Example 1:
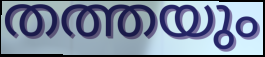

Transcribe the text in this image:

തത്തയും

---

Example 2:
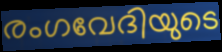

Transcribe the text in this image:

രംഗവേദിയുടെ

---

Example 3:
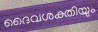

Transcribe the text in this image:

ദൈവശക്തിയും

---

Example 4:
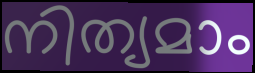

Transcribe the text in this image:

നിത്യമാം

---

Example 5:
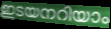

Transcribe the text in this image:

ഇടയനറിയാം